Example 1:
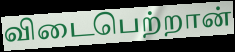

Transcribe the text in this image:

விடைபெற்றான்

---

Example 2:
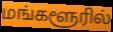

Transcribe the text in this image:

மங்களூரில்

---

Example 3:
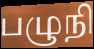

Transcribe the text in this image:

பழுநி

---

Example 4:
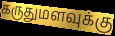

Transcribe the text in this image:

கருதுமளவுக்கு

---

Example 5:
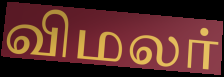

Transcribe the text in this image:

விமலர்